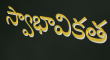
స్వాభావికత